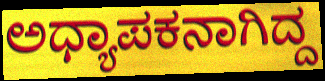
ಅಧ್ಯಾಪಕನಾಗಿದ್ದ